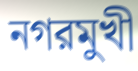
নগরমুখী